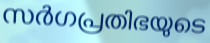
സർഗപ്രതിഭയുടെ